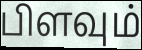
பிளவும்